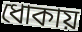
ধোকায়